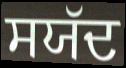
ਸਯੱਦ